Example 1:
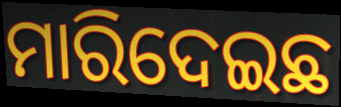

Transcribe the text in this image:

ମାରିଦେଇଛ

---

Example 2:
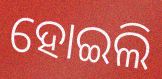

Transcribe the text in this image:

ହୋଇଲି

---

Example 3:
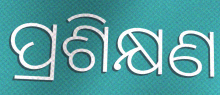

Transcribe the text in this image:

ପ୍ରଶିକ୍ଷଣ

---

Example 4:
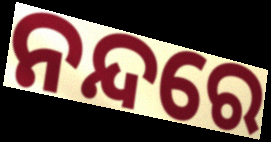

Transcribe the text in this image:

ନନ୍ଦରେ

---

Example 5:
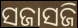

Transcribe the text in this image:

ସଜାସଜି